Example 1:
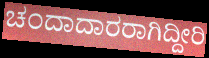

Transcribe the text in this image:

ಚಂದಾದಾರರಾಗಿದ್ದೀರಿ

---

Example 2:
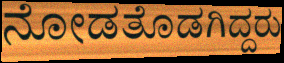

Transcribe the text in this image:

ನೋಡತೊಡಗಿದ್ದರು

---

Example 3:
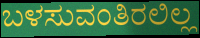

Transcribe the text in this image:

ಬಳಸುವಂತಿರಲಿಲ್ಲ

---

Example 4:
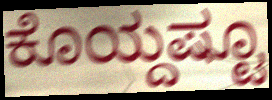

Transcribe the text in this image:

ಕೊಯ್ದಷ್ಟೂ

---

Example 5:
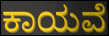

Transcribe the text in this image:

ಕಾಯವೆ